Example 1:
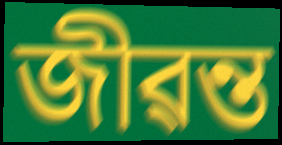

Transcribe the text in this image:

জীৱন্ত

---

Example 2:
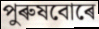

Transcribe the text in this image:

পুৰুষবোৰে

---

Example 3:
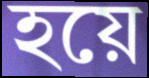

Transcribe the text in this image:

হয়ে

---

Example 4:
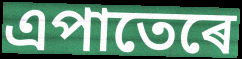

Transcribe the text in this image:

এপাতেৰে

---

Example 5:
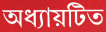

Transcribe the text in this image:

অধ্যায়টিত